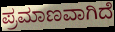
ಪ್ರಮಾಣವಾಗಿದೆ